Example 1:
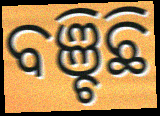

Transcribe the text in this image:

ବଞ୍ଚିଛି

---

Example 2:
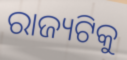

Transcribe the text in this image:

ରାଜ୍ୟଟିକୁ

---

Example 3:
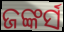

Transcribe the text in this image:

ଜଙ୍କର୍ସ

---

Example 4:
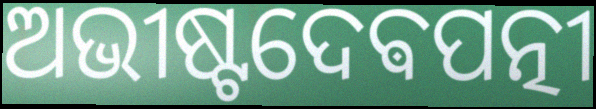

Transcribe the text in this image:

ଅଭୀଷ୍ଟଦେଵପତ୍ନୀ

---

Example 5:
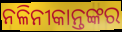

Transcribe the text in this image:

ନଳିନୀକାନ୍ତଙ୍କର